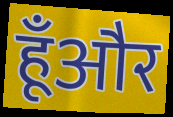
हूँऔर